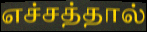
எச்சத்தால்